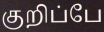
குறிப்பே